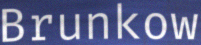
Brunkow